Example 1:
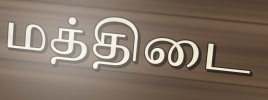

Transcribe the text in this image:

மத்திடை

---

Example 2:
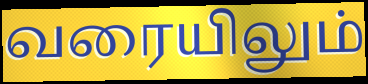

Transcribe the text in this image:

வரையிலும்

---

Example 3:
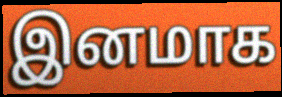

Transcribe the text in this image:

இனமாக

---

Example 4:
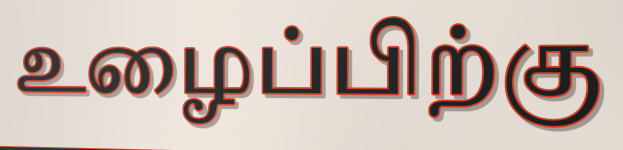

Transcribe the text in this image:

உழைப்பிற்கு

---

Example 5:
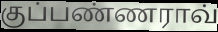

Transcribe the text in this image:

குப்பண்ணராவ்